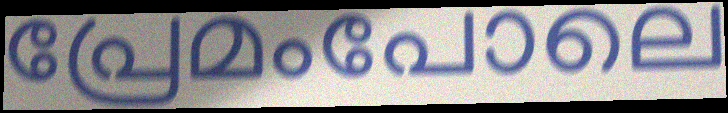
പ്രേമംപോലെ